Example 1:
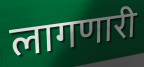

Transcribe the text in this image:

लागणारी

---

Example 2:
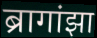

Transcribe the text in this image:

ब्रागांझा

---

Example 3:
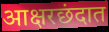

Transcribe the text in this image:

आक्षरछंदात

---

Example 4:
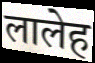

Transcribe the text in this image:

लालेह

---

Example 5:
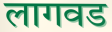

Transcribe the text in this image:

लागवड